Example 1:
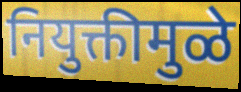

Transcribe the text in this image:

नियुक्तीमुळे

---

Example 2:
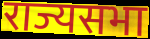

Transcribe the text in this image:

राज्यसभा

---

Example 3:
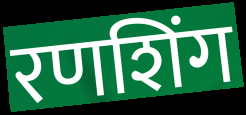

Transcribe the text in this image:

रणशिंग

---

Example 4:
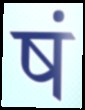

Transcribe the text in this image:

षं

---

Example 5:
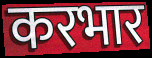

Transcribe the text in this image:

करभार